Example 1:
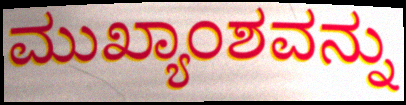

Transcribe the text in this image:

ಮುಖ್ಯಾಂಶವನ್ನು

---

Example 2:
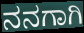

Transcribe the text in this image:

ನನಗಾಗಿ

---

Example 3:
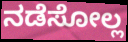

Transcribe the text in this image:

ನಡೆಸೋಲ್ಲ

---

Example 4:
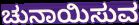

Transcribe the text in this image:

ಚುನಾಯಿಸುವ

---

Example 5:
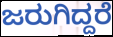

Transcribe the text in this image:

ಜರುಗಿದ್ದರೆ